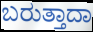
ಬರುತ್ತಾದಾ